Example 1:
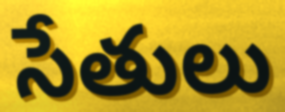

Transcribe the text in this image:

సేతులు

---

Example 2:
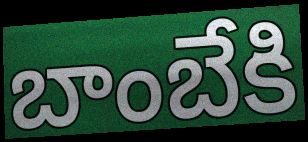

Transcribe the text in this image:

బాంబేకి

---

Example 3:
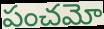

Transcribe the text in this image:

పంచమో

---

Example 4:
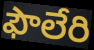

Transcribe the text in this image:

ఫౌలేరి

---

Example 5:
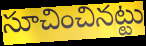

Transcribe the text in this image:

సూచించినట్టు